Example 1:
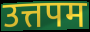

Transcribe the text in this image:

उत्तपम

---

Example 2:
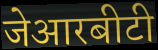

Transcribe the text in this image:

जेआरबीटी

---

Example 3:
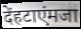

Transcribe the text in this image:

देंहटाएंमजा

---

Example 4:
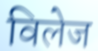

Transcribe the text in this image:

विलेज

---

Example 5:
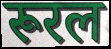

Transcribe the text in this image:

रूरल